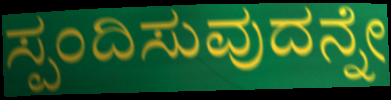
ಸ್ಪಂದಿಸುವುದನ್ನೇ